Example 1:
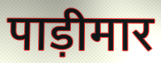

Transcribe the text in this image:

पाड़ीमार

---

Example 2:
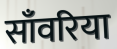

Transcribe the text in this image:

साँवरिया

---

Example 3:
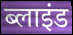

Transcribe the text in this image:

ब्लाइंड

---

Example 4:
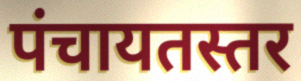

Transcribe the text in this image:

पंचायतस्तर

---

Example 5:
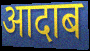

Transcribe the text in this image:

आदाब